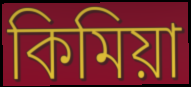
কিমিয়া